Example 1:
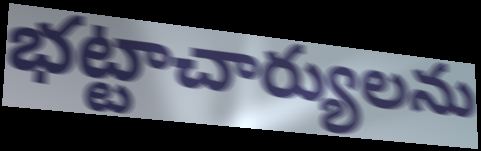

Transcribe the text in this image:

భట్టాచార్యులను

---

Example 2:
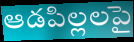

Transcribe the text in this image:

ఆడపిల్లలపై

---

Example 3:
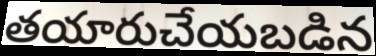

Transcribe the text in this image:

తయారుచేయబడిన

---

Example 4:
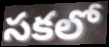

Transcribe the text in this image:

సకలో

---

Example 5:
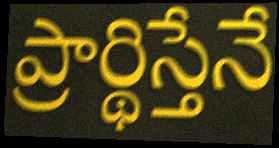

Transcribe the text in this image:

ప్రార్థిస్తేనే